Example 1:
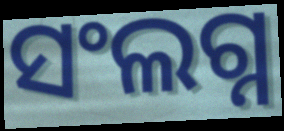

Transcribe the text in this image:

ସଂଲଗ୍ନ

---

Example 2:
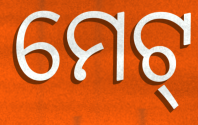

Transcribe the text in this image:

ମେଟ୍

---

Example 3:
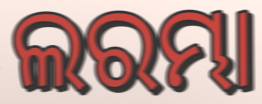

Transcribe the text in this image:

ଲରମ୍ଭା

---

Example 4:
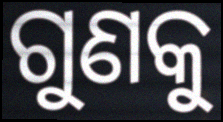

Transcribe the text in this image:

ଗୁଣକୁ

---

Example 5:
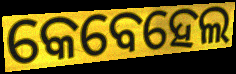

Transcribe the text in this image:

କେବେହେଲ